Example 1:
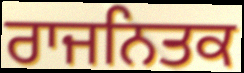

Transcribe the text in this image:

ਰਾਜਨਿਤਕ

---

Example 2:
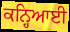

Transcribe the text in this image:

ਕਨ੍ਹਿਆਈ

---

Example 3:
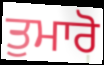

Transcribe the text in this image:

ਤੁਮਾਰੋ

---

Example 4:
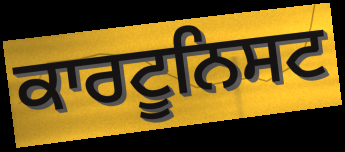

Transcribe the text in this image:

ਕਾਰਟੂਨਿਸਟ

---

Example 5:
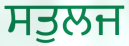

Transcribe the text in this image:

ਸਤੁਲਜ